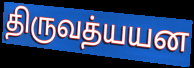
திருவத்யயன